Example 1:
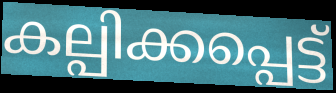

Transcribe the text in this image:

കല്പിക്കപ്പെട്ട്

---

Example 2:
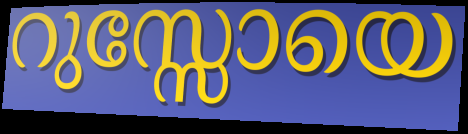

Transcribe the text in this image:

റുസ്സോയെ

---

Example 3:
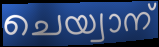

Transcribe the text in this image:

ചെയ്വാന്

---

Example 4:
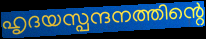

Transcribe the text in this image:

ഹൃദയസ്പന്ദനത്തിന്റെ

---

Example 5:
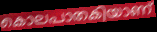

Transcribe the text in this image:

കൊലപാതകിയാണ്